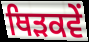
ਥਿੜਕਵੇਂ